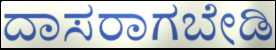
ದಾಸರಾಗಬೇಡಿ